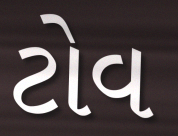
ટોવ